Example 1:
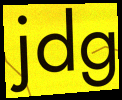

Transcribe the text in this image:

jdg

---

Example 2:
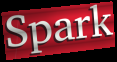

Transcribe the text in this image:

Spark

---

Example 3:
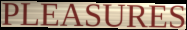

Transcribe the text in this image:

PLEASURES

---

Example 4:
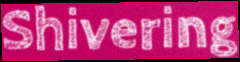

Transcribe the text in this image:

Shivering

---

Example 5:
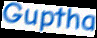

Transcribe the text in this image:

Guptha